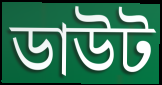
ডাউট